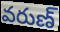
వరుణ్